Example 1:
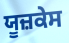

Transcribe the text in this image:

ਯੂਜ਼ਕੇਸ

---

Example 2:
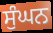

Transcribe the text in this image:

ਸੁੰਘਨ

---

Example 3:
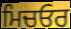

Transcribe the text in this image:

ਮਿਚਓਰ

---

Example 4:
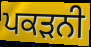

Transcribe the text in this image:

ਪਕੜਨੀ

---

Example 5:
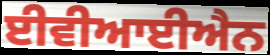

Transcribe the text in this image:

ਈਵੀਆਈਐਨ